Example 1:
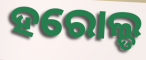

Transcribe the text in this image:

ହରୋଲ୍ଡ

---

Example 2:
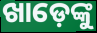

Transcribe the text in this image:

ଖାଡ଼େଙ୍କୁ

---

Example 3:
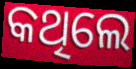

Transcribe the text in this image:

କଥିଲେ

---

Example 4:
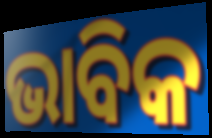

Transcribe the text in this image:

ଭାବିକ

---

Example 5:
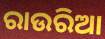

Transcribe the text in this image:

ରାଉରିଆ